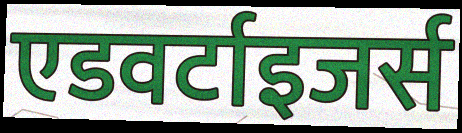
एडवर्टाइजर्स